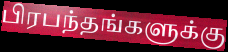
பிரபந்தங்களுக்கு